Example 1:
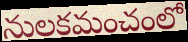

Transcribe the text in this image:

నులకమంచంలో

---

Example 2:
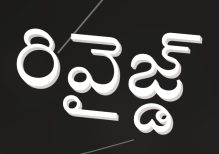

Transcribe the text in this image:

రివైజ్డ్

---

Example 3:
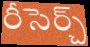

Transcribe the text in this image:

రీసెర్చ్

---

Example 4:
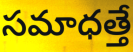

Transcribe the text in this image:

సమాధత్తే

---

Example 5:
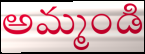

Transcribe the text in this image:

అమ్మండి